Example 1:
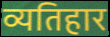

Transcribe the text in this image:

व्यतिहार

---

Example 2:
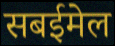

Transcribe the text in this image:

सबईमेल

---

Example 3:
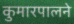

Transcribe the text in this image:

कुमारपालने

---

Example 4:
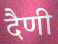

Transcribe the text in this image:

दैणी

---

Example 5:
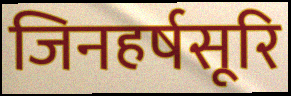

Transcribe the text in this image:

जिनहर्षसूरि